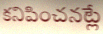
కనిపించనట్లే